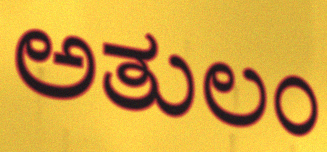
ಅತುಲಂ